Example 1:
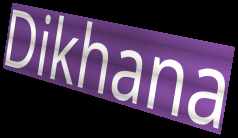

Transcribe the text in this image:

Dikhana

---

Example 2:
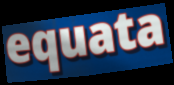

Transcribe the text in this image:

equata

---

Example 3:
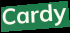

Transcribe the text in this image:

Cardy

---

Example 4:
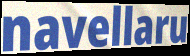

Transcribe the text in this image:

navellaru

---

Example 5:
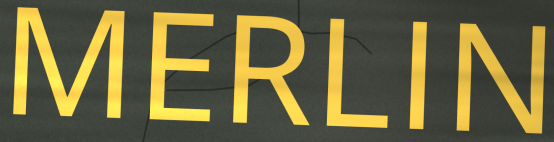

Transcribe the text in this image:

MERLIN